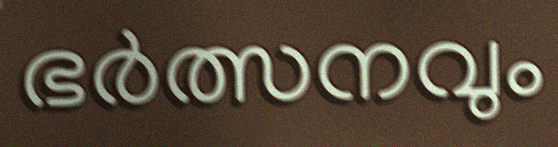
ഭർത്സനവും